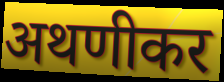
अथणीकर